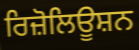
ਰਿਜ਼ੋਲਿਊਸ਼ਨ